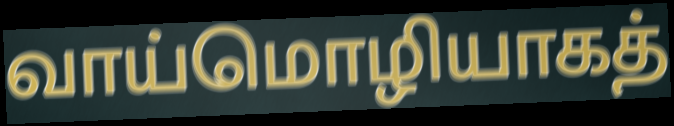
வாய்மொழியாகத்